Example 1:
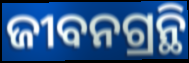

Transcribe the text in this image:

ଜୀବନଗ୍ରନ୍ଥି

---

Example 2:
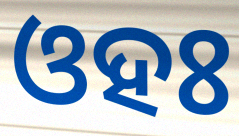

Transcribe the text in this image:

ଓହଃ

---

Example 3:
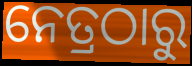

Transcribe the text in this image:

ନେତ୍ରଠାରୁ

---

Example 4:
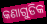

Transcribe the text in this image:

କଣାଗୁଡିକ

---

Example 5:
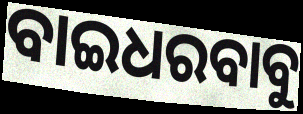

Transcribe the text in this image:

ବାଇଧରବାବୁ